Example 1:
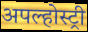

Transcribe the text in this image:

अपल्होस्ट्री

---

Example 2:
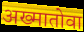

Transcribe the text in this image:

अख्मातोवा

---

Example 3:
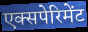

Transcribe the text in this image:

एक्सपेरिमेंट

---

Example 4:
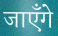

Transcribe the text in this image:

जाएँगे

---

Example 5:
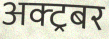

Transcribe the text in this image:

अक्ट्रबर